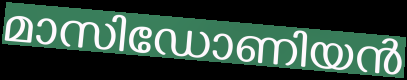
മാസിഡോണിയൻ